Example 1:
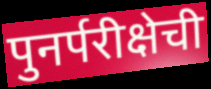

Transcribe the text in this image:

पुनर्परीक्षेची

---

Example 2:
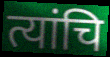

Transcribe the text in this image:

त्यांचि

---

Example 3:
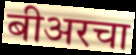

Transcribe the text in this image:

बीअरचा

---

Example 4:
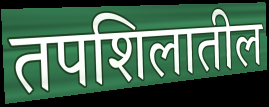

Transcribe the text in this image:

तपशिलातील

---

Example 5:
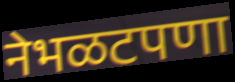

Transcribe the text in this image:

नेभळटपणा